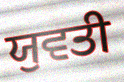
ਯੁਵਤੀ